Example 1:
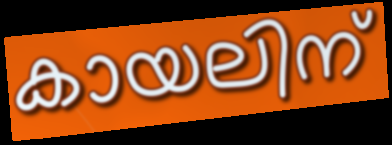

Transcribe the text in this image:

കായലിന്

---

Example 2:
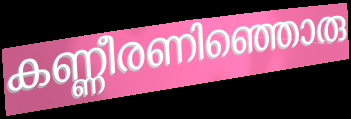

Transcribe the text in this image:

കണ്ണീരണിഞ്ഞൊരു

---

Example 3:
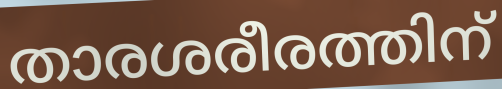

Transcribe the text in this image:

താരശരീരത്തിന്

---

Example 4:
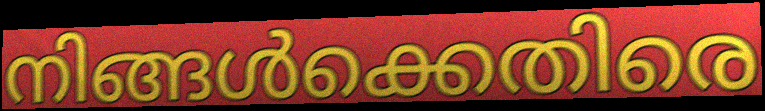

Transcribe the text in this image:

നിങ്ങൾക്കെതിരെ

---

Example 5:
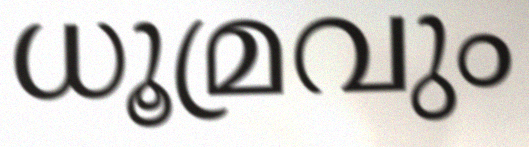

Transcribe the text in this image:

ധൂമ്രവും